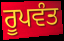
ਰੂਪਵੰਤ